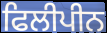
ਫਿਲੀਪੀਨ